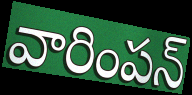
వారింపన్